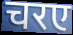
चरए